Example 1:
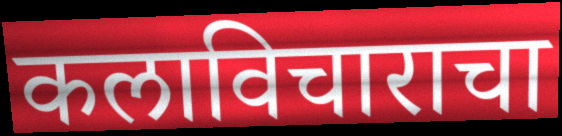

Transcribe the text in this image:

कलाविचाराचा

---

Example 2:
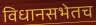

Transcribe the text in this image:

विधानसभेतच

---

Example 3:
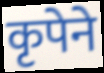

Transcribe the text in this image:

कृपेने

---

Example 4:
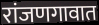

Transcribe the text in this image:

रांजणगावात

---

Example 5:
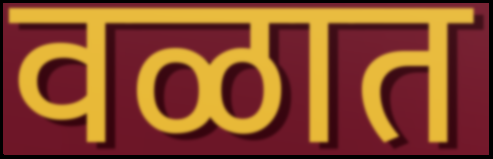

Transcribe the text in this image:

वळात